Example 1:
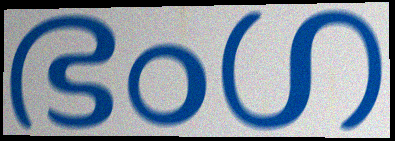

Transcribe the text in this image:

ഭംഗ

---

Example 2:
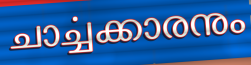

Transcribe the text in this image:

ചാൎച്ചക്കാരനും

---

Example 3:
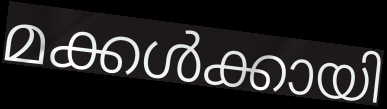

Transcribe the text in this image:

മക്കൾക്കായി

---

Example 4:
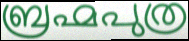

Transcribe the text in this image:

ബ്രഹ്മപുത്ര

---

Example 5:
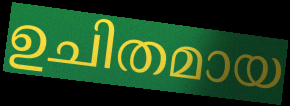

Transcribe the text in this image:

ഉചിതമായ